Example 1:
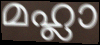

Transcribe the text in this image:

മഹ്ലാ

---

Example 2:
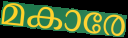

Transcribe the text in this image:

മകാരേ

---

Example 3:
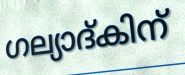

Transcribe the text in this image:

ഗല്യാദ്കിന്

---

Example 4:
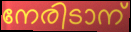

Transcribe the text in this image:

നേരിടാന്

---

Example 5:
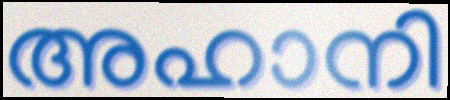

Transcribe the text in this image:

അഹാനി